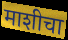
माशीचा